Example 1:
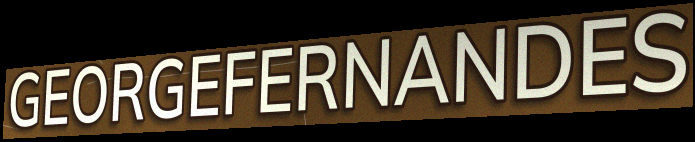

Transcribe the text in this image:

GEORGEFERNANDES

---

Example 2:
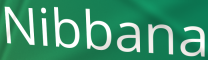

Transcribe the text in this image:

Nibbana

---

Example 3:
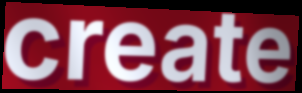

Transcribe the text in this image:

create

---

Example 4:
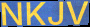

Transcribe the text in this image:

NKJV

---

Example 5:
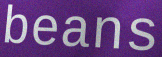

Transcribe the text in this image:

beans